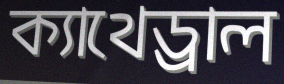
ক্যাথেড্রাল